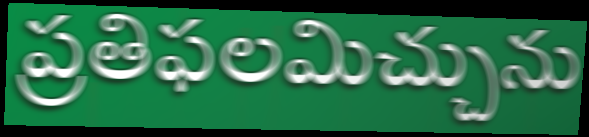
ప్రతిఫలమిచ్చును